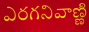
ఎరగనివాణ్ణి